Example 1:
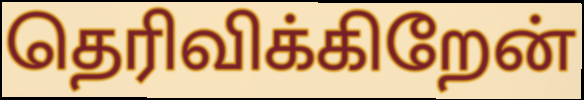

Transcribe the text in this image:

தெரிவிக்கிறேன்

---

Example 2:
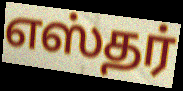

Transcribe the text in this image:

எஸ்தர்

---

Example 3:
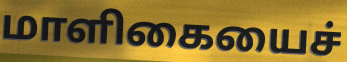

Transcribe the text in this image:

மாளிகையைச்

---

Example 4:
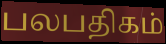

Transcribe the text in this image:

பலபதிகம்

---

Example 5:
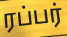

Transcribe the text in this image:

ரப்பர்